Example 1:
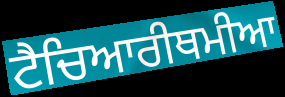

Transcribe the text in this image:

ਟੈਚਿਆਰੀਥਮੀਆ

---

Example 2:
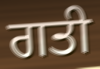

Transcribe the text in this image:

ਗਤੀ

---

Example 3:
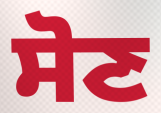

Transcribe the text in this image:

ਸੋਣ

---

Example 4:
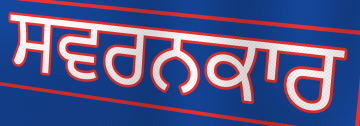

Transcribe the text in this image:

ਸਵਰਨਕਾਰ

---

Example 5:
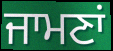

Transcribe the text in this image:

ਜਾਮਣਾਂ